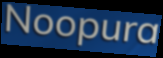
Noopura